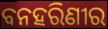
ବନହରିଣୀର